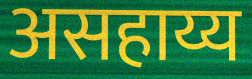
असहाय्य